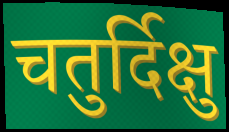
चतुर्दिक्षु